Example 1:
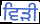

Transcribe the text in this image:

ਵਿੜੀ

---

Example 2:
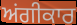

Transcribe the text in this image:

ਅਂਗੀਕਾਰ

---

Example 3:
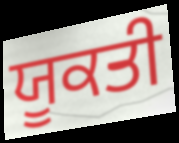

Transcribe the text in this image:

ਯੂਕਤੀ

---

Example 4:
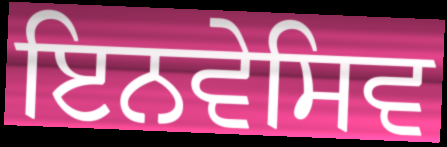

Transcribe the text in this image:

ਇਨਵੇਸਿਵ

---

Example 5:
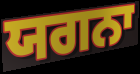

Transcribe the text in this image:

ਯਗਨਾ